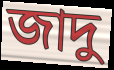
জাদু